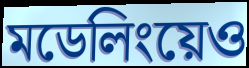
মডেলিংয়েও